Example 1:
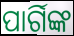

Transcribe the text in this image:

ପାର୍ଗିଙ୍କ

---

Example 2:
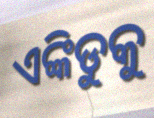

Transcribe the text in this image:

ଏଙ୍କିଡୁକୁ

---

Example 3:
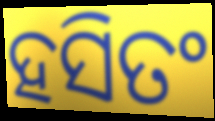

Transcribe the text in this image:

ହସିତଂ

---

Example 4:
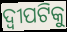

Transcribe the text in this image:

ଦ୍ୱୀପଟିକୁ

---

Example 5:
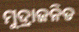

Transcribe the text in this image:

ମୁଦ୍ରାଜନିତ